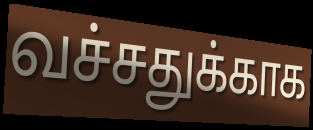
வச்சதுக்காக